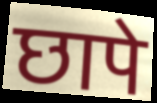
छापे